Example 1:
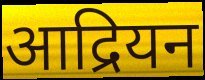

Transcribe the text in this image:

आद्रियन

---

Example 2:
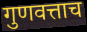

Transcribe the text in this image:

गुणवत्ताच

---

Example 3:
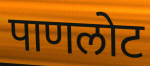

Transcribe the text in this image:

पाणलोट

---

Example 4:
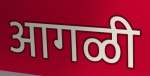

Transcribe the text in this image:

आगळी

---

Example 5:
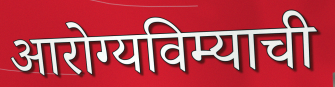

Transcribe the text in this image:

आरोग्यविम्याची